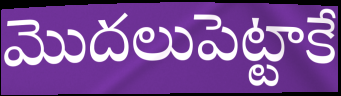
మొదలుపెట్టాకే